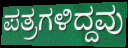
ಪತ್ರಗಳಿದ್ದವು